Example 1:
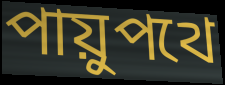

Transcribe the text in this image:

পায়ুপথে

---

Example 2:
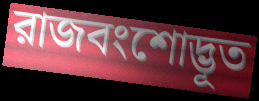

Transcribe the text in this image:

রাজবংশোদ্ভূত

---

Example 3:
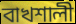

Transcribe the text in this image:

বাখশালী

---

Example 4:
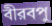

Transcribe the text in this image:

বীরবপু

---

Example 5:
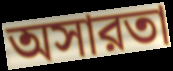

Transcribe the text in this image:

অসারতা